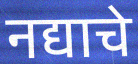
नद्याचे